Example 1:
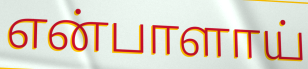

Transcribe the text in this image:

என்பாளாய்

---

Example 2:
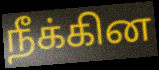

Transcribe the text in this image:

நீக்கின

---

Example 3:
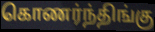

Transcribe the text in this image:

கொணர்ந்திங்கு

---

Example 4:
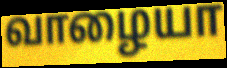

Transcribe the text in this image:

வாழையா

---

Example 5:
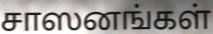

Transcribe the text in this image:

சாஸனங்கள்